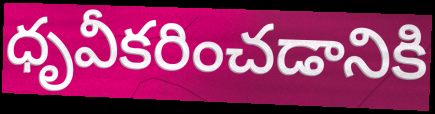
ధృవీకరించడానికి